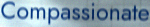
Compassionate